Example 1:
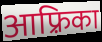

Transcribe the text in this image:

आफ़्रिका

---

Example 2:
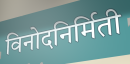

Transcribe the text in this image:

विनोदनिर्मिती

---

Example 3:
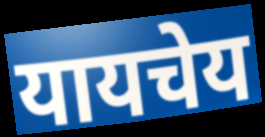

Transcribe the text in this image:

यायचेय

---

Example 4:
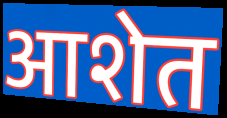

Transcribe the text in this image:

आशेत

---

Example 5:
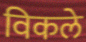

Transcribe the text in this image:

विकले